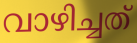
വാഴിച്ചത്